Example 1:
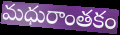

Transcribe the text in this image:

మధురాంతకం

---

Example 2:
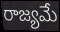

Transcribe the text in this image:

రాజ్యమే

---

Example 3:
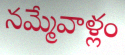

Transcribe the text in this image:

నమ్మేవాళ్లం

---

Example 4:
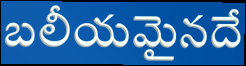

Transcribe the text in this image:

బలీయమైనదే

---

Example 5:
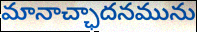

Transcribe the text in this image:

మానాచ్ఛాదనమును